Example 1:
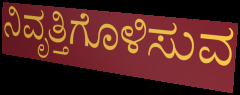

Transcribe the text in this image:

ನಿವೃತ್ತಿಗೊಳಿಸುವ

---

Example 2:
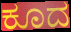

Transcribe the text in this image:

ಕೂದ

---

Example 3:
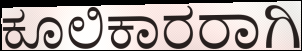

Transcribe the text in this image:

ಕೂಲಿಕಾರರಾಗಿ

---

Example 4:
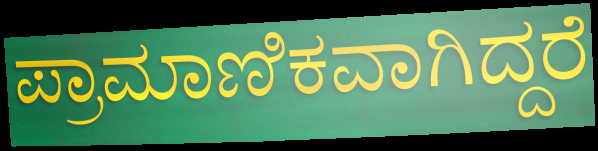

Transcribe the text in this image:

ಪ್ರಾಮಾಣಿಕವಾಗಿದ್ದರೆ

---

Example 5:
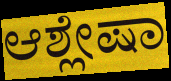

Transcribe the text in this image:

ಆಶ್ಲೇಷಾ